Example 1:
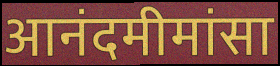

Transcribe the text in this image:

आनंदमीमांसा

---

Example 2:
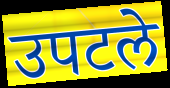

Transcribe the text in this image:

उपटले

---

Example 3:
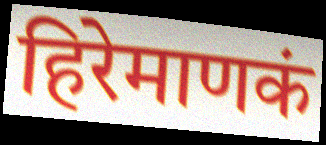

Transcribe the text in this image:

हिरेमाणकं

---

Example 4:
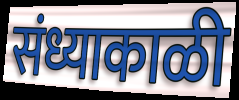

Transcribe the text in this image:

संध्याकाळी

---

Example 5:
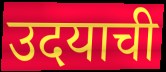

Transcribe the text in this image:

उदयाची